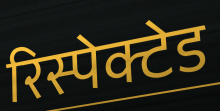
रिस्पेक्टेड